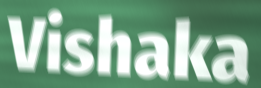
Vishaka